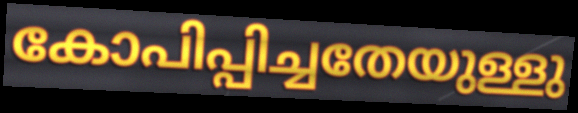
കോപിപ്പിച്ചതേയുള്ളു